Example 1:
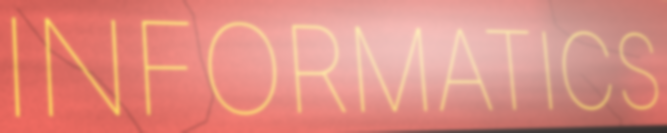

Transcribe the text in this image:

INFORMATICS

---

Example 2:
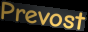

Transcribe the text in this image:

Prevost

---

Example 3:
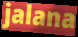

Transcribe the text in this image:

jalana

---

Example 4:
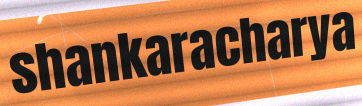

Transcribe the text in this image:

shankaracharya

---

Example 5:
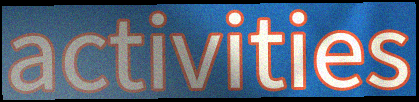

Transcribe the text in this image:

activities